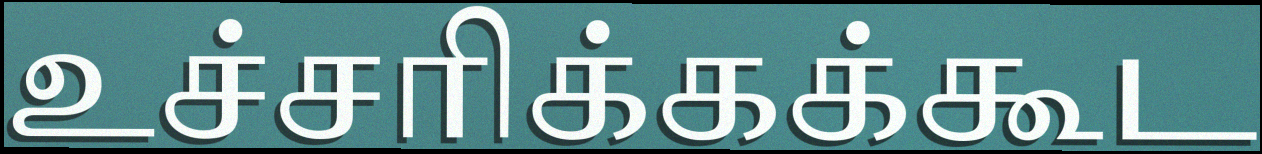
உச்சரிக்கக்கூட